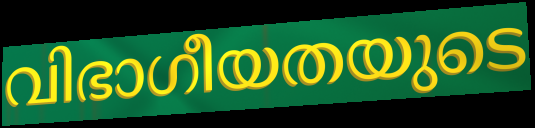
വിഭാഗീയതയുടെ